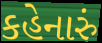
કહેનારું